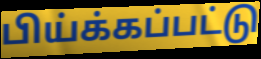
பிய்க்கப்பட்டு